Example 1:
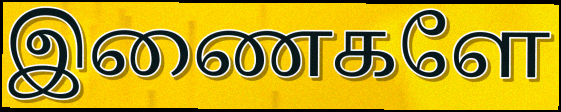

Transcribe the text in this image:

இணைகளே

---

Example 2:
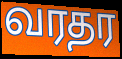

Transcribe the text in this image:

வரதர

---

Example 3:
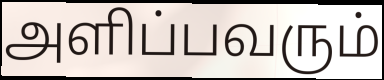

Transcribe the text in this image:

அளிப்பவரும்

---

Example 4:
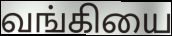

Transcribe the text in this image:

வங்கியை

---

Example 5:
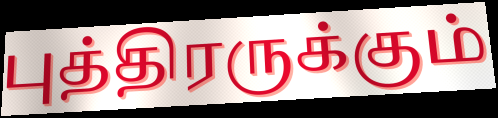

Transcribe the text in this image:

புத்திரருக்கும்